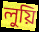
লুয়ি